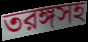
তরঙ্গসহ